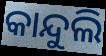
କାନ୍ଦୁଲି